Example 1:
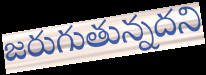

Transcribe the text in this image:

జరుగుతున్నదని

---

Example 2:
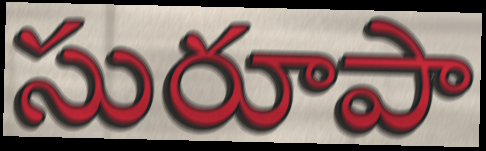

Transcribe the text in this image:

సురూపా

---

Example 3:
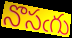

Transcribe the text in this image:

నొసఁగు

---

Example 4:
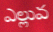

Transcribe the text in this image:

ఎల్లువ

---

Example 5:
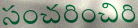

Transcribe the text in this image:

సంచరించిరి